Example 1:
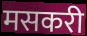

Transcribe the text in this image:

मसकरी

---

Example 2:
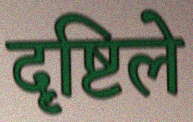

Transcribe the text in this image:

दृष्टिले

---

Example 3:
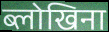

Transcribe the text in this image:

ब्लोखिना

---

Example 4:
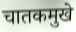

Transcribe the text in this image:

चातकमुखे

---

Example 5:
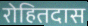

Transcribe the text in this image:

रोहितदास